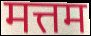
मत्तम